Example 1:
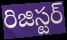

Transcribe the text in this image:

రిజిస్టర్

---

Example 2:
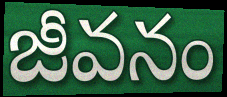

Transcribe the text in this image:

జీవనం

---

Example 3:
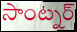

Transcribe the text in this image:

సాంట్నర్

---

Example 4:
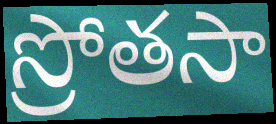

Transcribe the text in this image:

స్రోతసా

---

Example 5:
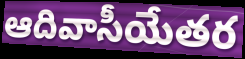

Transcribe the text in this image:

ఆదివాసీయేతర